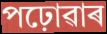
পঢ়োৱাৰ